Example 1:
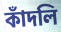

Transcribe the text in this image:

কাঁদলি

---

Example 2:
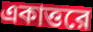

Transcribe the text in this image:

একাত্তরে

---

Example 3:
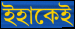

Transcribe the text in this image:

ইহাকেই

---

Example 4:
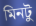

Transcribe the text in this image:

মিনটু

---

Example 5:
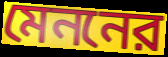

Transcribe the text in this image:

মেননের